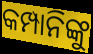
କମ୍ପାନିଙ୍କୁ